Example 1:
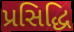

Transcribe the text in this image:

પ્રસિદ્ધિ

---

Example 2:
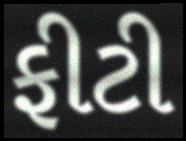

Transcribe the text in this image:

ફીટી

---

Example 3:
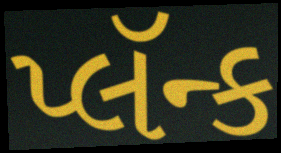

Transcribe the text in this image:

પ્લૅન્ક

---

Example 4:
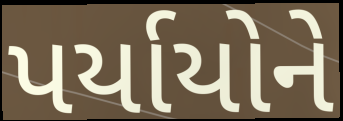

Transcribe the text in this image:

પર્યાયોને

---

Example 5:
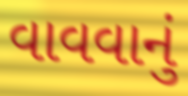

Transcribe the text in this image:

વાવવાનું